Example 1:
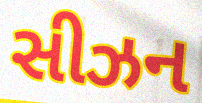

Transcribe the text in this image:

સીઝન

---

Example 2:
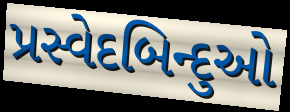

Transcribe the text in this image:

પ્રસ્વેદબિન્દુઓ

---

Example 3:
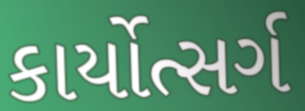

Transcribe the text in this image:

કાર્યોત્સર્ગ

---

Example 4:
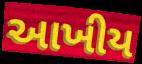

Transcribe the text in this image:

આખીય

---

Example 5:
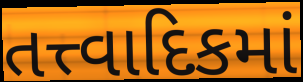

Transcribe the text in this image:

તત્ત્વાદિકમાં